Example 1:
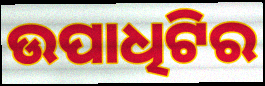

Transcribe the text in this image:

ଉପାଧିଟିର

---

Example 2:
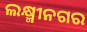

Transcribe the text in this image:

ଲକ୍ଷ୍ମୀନଗର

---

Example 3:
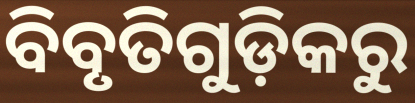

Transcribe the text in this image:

ବିବୃତିଗୁଡ଼ିକରୁ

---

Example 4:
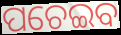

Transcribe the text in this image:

ପଚେଇବ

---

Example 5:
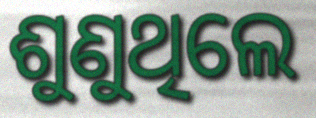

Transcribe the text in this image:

ଶୁଣୁଥିଲେ